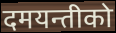
दमयन्तीको